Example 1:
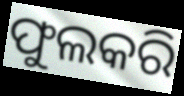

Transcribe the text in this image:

ଫୁଲକରି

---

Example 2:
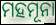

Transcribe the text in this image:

ମହମୂନା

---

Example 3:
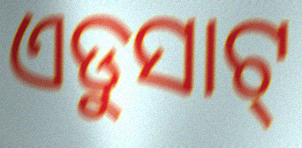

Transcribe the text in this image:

ଏଡୁସାଟ୍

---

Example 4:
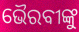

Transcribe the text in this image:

ଭୈରବୀଙ୍କୁ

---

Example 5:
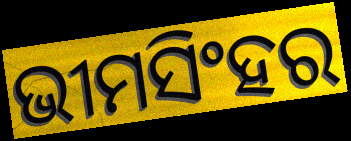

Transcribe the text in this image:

ଭୀମସିଂହର